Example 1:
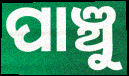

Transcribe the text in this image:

ପାଞ୍ଚୁ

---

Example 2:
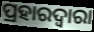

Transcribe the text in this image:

ପ୍ରହାରଦ୍ଵାରା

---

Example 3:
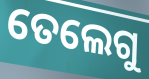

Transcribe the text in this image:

ତେଲେଗୁ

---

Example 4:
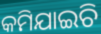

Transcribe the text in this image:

କମିଯାଇଚି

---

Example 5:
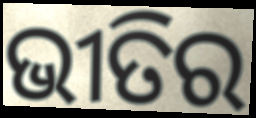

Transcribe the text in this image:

ଭୀତିର